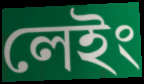
লেইং